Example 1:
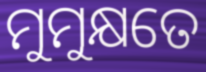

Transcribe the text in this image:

ମୁମୁକ୍ଷତେ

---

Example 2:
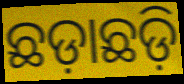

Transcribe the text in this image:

ଛଡ଼ାଛଡ଼ି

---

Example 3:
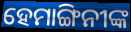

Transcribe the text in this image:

ହେମାଙ୍ଗିନୀଙ୍କ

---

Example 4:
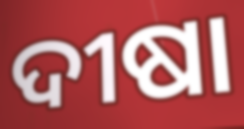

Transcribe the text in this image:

ଦୀଷା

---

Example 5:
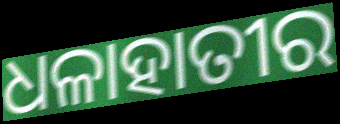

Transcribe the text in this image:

ଧଳାହାତୀର